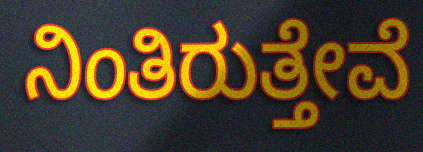
ನಿಂತಿರುತ್ತೇವೆ